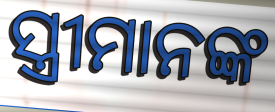
ସ୍ତ୍ରୀମାନଙ୍କ